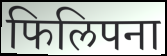
फिलिपना